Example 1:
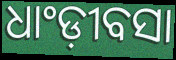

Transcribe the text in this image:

ଧାଂଡ଼ୀବସା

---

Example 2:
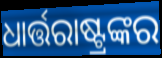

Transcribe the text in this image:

ଧାର୍ତ୍ତରାଷ୍ଟ୍ରଙ୍କର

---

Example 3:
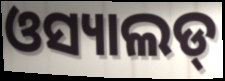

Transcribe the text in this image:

ଓସ୍ୟାଲଡ୍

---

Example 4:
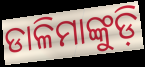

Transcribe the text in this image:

ଡାଳିମାଙ୍କୁଡ଼ି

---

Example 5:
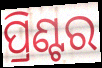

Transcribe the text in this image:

ପ୍ରିଣ୍ଟର